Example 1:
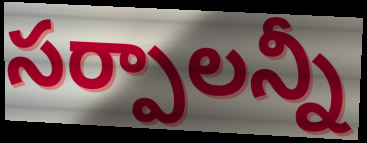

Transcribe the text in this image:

సర్పాలన్నీ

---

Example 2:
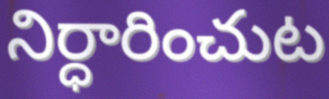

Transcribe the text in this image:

నిర్ధారించుట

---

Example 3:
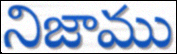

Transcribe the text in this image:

నిజాము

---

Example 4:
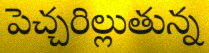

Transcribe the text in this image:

పెచ్చరిల్లుతున్న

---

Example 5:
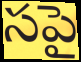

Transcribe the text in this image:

సపై